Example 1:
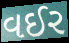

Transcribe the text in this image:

વઈર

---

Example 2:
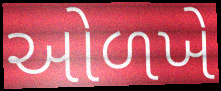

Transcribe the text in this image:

ઓળખે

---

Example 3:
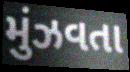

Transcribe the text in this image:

મુંઝવતા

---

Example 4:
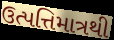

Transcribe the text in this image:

ઉત્પત્તિમાત્રથી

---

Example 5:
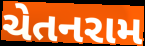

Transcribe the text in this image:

ચેતનરામ